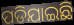
ପଡିଯାଇଛି